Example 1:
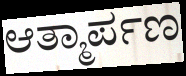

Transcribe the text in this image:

ಆತ್ಮಾರ್ಪಣ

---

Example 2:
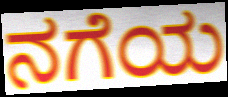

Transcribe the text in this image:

ನಗೆಯ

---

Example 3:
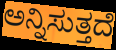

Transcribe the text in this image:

ಅನ್ನಿಸುತ್ತದೆ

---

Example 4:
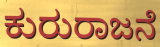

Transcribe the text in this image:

ಕುರುರಾಜನೆ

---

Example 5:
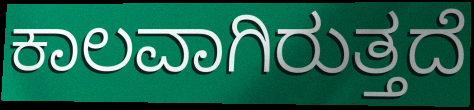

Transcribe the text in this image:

ಕಾಲವಾಗಿರುತ್ತದೆ